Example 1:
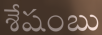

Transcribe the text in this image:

శేషంబు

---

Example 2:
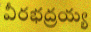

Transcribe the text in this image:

వీరభద్రయ్య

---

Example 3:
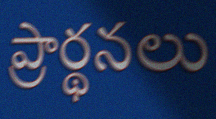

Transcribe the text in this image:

ప్రార్థనలు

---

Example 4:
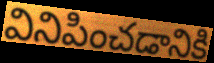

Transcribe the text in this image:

వినిపించడానికి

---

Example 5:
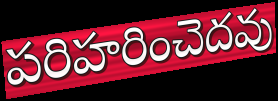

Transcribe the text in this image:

పరిహరించెదవు